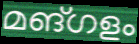
മങ്ഗളം